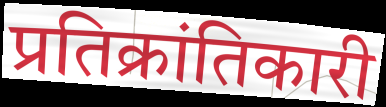
प्रतिक्रांतिकारी